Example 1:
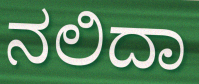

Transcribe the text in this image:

ನಲಿದಾ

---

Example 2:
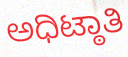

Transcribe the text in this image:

ಅಧಿಟ್ಠಾತಿ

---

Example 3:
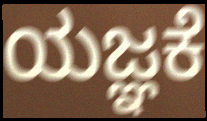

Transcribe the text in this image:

ಯಜ್ಞಕೆ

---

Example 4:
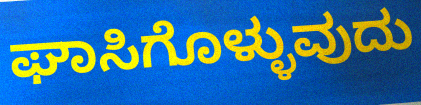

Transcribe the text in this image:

ಘಾಸಿಗೊಳ್ಳುವುದು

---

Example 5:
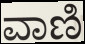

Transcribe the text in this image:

ವಾಣಿ